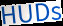
HUDs